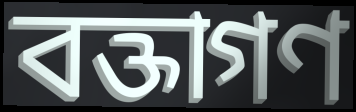
বক্তাগণ